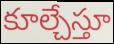
కూల్చేస్తూ